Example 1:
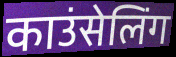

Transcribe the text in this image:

काउंसेलिंग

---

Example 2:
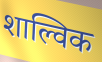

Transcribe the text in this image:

शाल्विक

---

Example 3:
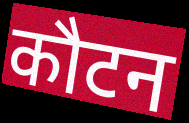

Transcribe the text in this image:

कौटन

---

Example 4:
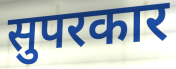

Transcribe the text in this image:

सुपरकार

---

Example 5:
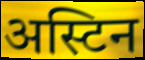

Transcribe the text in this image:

अस्टिन